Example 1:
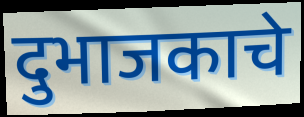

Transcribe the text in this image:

दुभाजकाचे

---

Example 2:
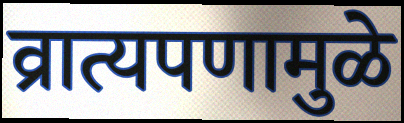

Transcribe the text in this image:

व्रात्यपणामुळे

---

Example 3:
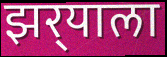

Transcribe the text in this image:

झर्‍याला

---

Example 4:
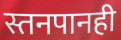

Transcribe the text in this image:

स्तनपानही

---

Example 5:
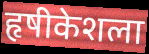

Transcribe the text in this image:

हृषीकेशला